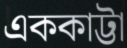
এককাট্টা